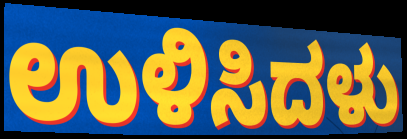
ಉಳಿಸಿದಳು